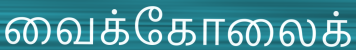
வைக்கோலைக்